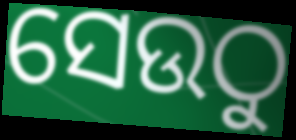
ସେଉଠୁ